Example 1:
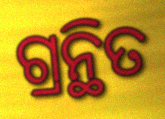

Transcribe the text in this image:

ଗ୍ରନ୍ଥିତ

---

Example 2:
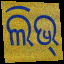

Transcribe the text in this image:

ଲିଭ୍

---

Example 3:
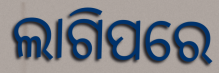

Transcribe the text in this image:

ଲାଗିପରେ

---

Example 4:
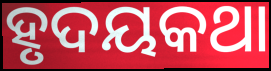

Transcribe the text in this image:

ହୃଦୟକଥା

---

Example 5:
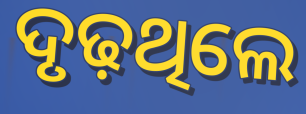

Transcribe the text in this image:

ଦୃଢ଼ଥିଲେ